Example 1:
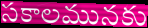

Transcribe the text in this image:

సకాలమునకు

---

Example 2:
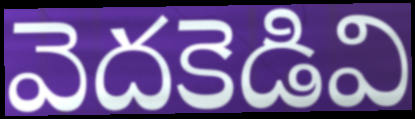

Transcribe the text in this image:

వెదకెడివి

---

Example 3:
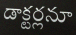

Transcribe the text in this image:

డాక్టర్లనూ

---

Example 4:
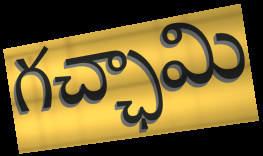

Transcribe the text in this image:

గచ్ఛామి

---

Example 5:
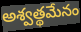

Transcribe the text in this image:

అశ్వత్థమేనం